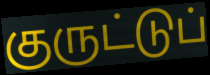
குருட்டுப்